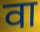
वा